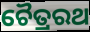
ଚୈତ୍ରରଥ